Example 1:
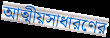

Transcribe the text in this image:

আত্মীয়সাধারণের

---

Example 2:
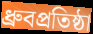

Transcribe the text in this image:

ধ্রুবপ্রতিষ্ঠা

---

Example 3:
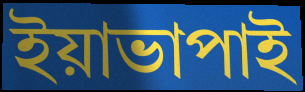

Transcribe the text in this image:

ইয়াভাপাই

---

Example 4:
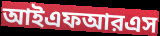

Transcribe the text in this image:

আইএফআরএস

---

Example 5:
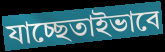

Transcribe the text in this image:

যাচ্ছেতাইভাবে